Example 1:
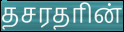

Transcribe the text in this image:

தசரதரின்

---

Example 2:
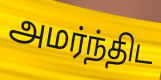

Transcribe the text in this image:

அமர்ந்திட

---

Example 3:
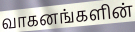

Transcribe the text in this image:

வாகனங்களின்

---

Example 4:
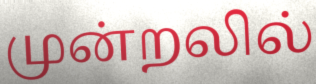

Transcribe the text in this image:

முன்றலில்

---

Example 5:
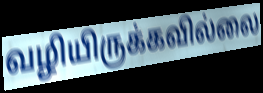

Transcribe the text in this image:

வழியிருக்கவில்லை